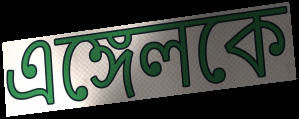
এঙ্গেলকে